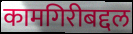
कामगिरीबद्दल